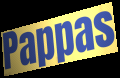
Pappas